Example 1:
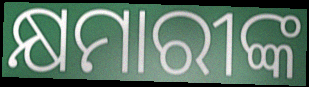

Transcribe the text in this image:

କ୍ଷମାରୀଙ୍କ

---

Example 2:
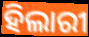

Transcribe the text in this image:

ହିଲାରୀ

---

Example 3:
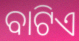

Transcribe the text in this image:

ବାଟିଏ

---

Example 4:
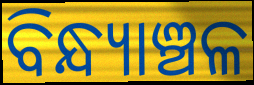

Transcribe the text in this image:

ବିନ୍ଧ୍ୟାଞ୍ଚଳ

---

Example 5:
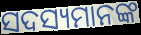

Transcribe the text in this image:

ସଦସ୍ୟମାନଙ୍କ